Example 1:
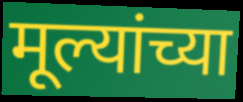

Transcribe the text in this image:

मूल्यांच्या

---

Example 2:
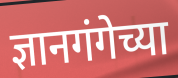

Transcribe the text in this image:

ज्ञानगंगेच्या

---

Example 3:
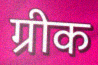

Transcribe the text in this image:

ग्रीक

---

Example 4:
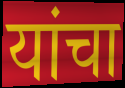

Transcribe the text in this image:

यांचा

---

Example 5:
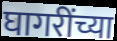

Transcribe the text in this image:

घागरींच्या